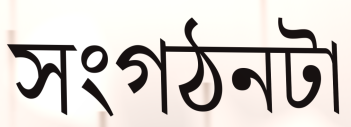
সংগঠনটা